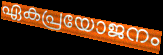
ഏകപ്രയോജനം